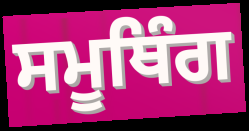
ਸਮੂਥਿੰਗ